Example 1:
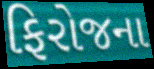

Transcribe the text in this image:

ફિરોજના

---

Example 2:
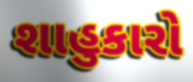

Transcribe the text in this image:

શાહુકારો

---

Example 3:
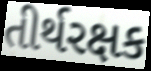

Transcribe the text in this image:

તીર્થરક્ષક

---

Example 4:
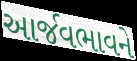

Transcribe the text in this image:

આર્જવભાવને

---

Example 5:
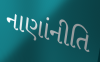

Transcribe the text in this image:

નાણાંનીતિ